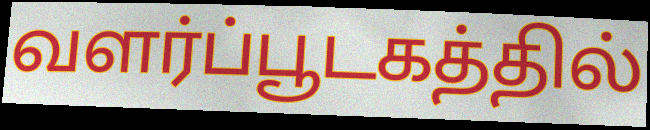
வளர்ப்பூடகத்தில்